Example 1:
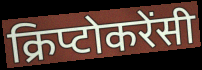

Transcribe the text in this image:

क्रिप्टोकरेंसी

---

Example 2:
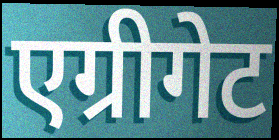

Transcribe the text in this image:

एग्रीगेट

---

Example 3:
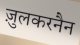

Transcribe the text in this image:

ज़ुलकरनैन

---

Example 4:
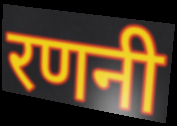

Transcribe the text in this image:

रणनी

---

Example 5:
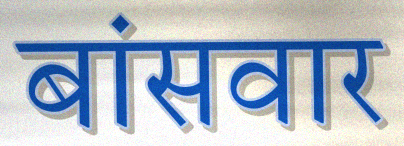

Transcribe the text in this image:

बांसवार